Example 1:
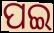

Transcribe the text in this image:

ପଇ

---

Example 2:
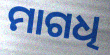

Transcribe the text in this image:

ମାଗଧି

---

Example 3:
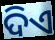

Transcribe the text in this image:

ଦିଏ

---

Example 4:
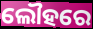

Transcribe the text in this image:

ଲୌହରେ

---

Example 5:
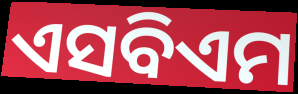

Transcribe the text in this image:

ଏସବିଏମ